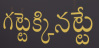
గట్టెక్కినట్టే